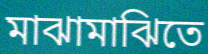
মাঝামাঝিতে